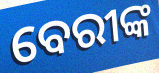
ବେରୀଙ୍କ